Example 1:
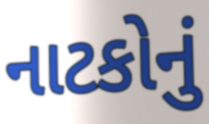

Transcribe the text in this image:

નાટકોનું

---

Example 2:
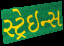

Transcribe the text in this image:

સ્ટ્રેઇન્સ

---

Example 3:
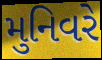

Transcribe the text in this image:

મુનિવરે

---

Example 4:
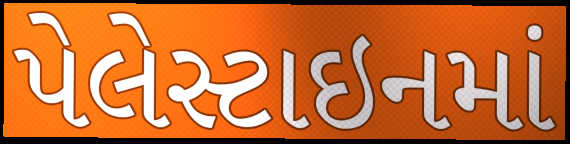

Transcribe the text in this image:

પેલેસ્ટાઇનમાં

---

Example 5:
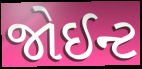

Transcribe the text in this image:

જોઈન્ટ